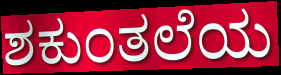
ಶಕುಂತಲೆಯ